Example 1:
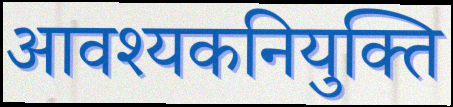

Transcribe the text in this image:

आवश्यकनियुक्ति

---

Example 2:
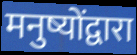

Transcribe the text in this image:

मनुष्योंद्वारा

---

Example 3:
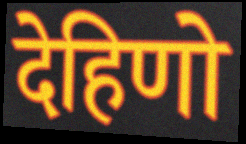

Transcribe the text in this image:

देहिणो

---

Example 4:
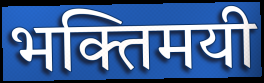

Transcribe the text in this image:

भक्तिमयी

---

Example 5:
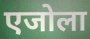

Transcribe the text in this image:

एजोला